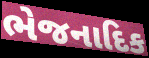
ભેજનાદિક